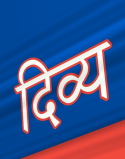
दिव्य